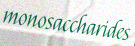
monosaccharides